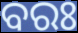
ବରଃ